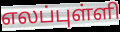
எலப்புள்ளி